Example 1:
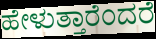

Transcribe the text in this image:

ಹೇಳುತ್ತಾರೆಂದರೆ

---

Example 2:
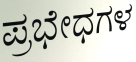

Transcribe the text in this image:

ಪ್ರಭೇಧಗಳ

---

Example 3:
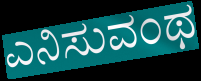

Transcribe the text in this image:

ಎನಿಸುವಂಥ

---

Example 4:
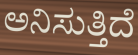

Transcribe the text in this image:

ಅನಿಸುತ್ತಿದೆ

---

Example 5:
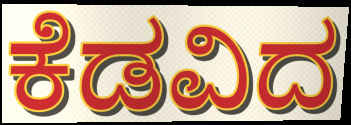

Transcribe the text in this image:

ಕೆಡವಿದ